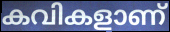
കവികളാണ്